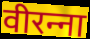
वीरन्ना